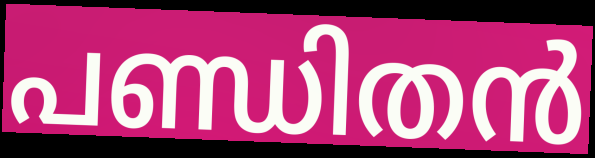
പണ്ഡിതൻ